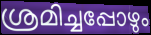
ശ്രമിച്ചപ്പോഴും